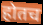
होतच